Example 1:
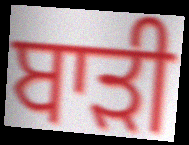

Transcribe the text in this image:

ਬਾੜੀ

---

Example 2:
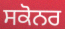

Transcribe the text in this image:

ਸਕੋਨਰ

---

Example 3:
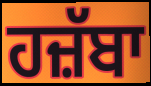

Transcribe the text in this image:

ਹਜ਼ੱਬਾ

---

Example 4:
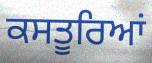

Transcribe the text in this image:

ਕਸਤੂਰਿਆਂ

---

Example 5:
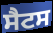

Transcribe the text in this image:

ਸੈਟਸ